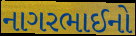
નાગરભાઈનો